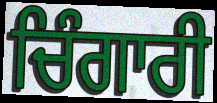
ਚਿੰਗਾਰੀ